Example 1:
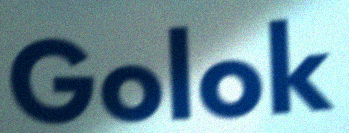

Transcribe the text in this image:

Golok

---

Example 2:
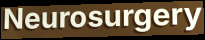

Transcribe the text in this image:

Neurosurgery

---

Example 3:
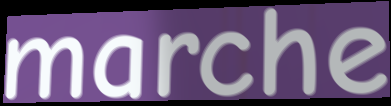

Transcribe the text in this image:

marche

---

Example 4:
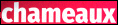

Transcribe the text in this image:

chameaux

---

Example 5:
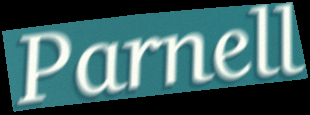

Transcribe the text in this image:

Parnell